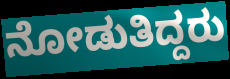
ನೋಡುತಿದ್ದರು